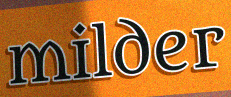
milder